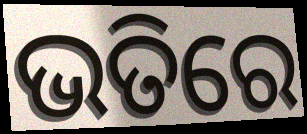
ଭତିରେ